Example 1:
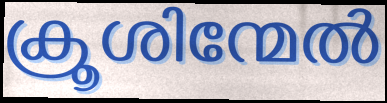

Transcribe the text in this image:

ക്രൂശിന്മേൽ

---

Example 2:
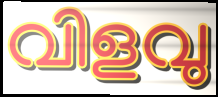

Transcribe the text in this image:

വിളവു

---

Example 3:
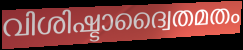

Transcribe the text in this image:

വിശിഷ്ടാദ്വൈതമതം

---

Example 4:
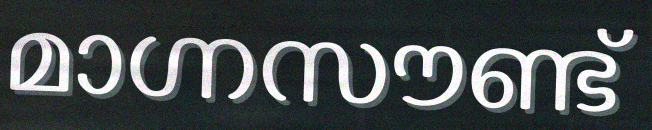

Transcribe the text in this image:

മാഗ്നസൗണ്ട്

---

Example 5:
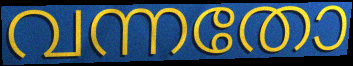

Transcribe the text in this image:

വന്നതോ